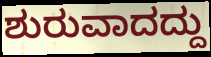
ಶುರುವಾದದ್ದು